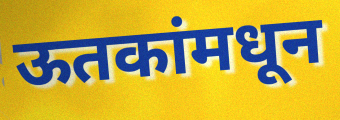
ऊतकांमधून